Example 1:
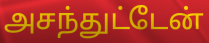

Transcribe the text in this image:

அசந்துட்டேன்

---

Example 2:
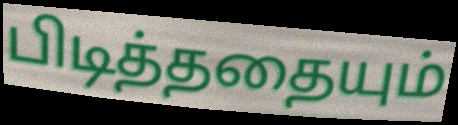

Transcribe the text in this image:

பிடித்ததையும்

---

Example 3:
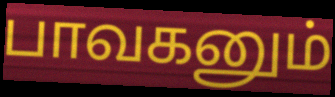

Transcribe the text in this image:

பாவகனும்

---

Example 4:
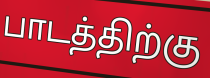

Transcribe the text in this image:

பாடத்திற்கு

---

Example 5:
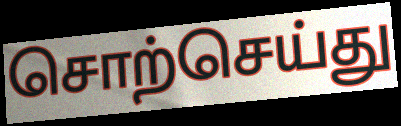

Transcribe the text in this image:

சொற்செய்து